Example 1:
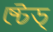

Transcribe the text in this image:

ষ্টেড্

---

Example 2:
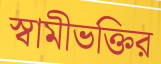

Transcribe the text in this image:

স্বামীভক্তির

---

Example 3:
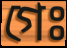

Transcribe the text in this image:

গেঃ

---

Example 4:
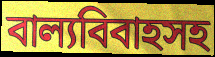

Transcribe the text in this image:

বাল্যবিবাহসহ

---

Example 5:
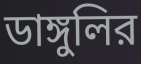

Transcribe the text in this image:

ডাঙ্গুলির